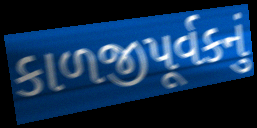
કાળજીપૂર્વકનું